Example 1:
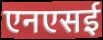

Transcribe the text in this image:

एनएसई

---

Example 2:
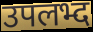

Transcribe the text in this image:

उपलभ्द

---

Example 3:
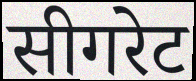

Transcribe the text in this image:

सीगरेट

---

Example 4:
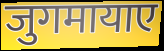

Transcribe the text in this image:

जुगमायाए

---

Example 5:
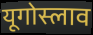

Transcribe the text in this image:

यूगोस्लाव